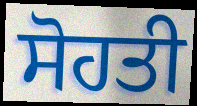
ਸੋਹਤੀ